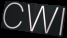
CWI